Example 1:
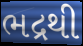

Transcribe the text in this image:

ભદ્રથી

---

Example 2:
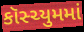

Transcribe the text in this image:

કૉસ્ચ્યુમમાં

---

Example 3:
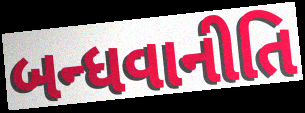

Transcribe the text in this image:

બન્ધવાનીતિ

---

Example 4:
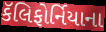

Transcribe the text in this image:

કૅલિફોર્નિયાના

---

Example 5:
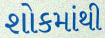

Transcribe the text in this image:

શોકમાંથી